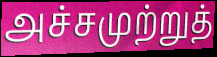
அச்சமுற்றுத்